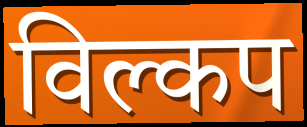
विल्कप